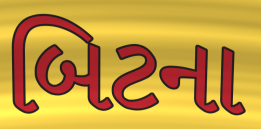
બિટના